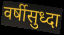
वर्षीसुध्दा